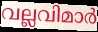
വല്ലവിമാർ